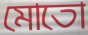
মোতো